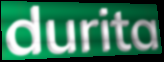
durita